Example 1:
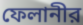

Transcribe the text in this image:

ফেলানীর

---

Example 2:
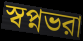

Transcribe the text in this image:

স্বপ্নভরা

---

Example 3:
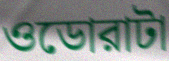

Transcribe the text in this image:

ওডোরাটা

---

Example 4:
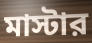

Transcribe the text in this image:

মাস্টার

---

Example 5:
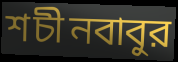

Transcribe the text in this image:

শচীনবাবুর